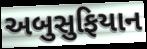
અબુસુફિયાન